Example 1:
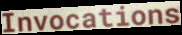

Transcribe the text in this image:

Invocations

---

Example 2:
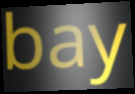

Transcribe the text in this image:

bay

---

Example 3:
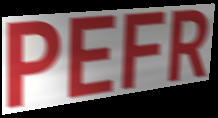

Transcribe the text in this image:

PEFR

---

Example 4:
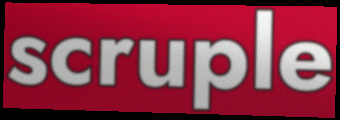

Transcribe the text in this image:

scruple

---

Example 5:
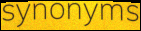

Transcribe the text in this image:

synonyms